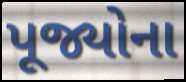
પૂજ્યોના